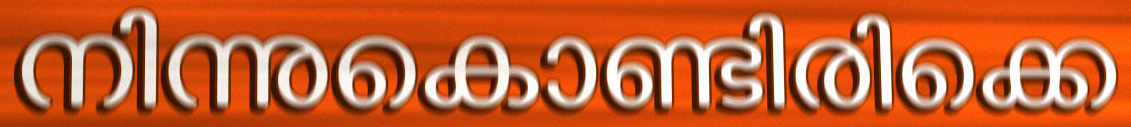
നിന്നുകൊണ്ടിരിക്കെ